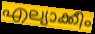
എല്യാക്കീം